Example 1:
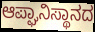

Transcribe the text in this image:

ಆಪ್ಘಾನಿಸ್ಥಾನದ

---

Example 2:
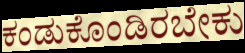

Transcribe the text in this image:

ಕಂಡುಕೊಂಡಿರಬೇಕು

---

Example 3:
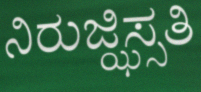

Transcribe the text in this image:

ನಿರುಜ್ಝಿಸ್ಸತಿ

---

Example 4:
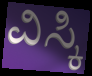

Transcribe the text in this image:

ವಿಸ್ಕಿ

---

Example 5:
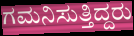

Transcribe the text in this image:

ಗಮನಿಸುತ್ತಿದ್ದರು